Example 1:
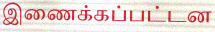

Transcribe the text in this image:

இணைக்கப்பட்டன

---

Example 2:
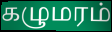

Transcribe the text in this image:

கழுமரம்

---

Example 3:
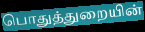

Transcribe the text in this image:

பொதுத்துறையின்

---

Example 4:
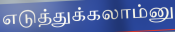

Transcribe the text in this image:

எடுத்துக்கலாம்னு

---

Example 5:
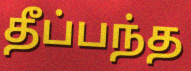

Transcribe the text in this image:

தீப்பந்த